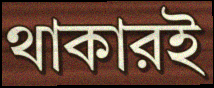
থাকারই